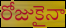
రోజుకైనా